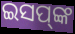
ଇସପ୍‌ଙ୍କ